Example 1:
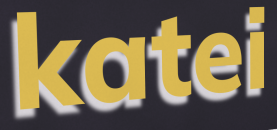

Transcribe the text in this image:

katei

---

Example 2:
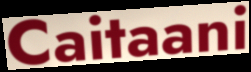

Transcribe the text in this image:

Caitaani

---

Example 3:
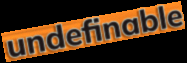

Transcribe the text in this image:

undefinable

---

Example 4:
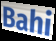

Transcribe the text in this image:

Bahi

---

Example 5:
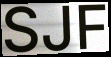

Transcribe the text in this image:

SJF